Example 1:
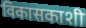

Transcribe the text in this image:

विकासकाशी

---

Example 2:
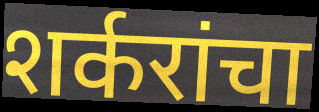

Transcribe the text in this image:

शर्करांचा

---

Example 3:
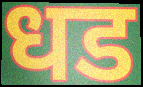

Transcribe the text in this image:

धड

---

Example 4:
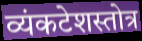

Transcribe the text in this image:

व्यंकटेशस्तोत्र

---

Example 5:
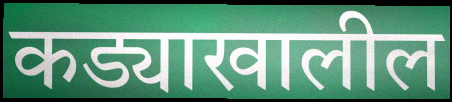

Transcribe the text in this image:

कड्याखालील